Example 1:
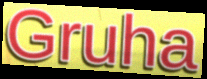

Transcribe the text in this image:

Gruha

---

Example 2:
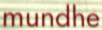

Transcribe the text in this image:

mundhe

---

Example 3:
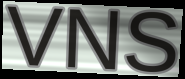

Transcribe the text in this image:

VNS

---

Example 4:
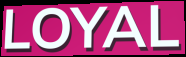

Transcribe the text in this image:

LOYAL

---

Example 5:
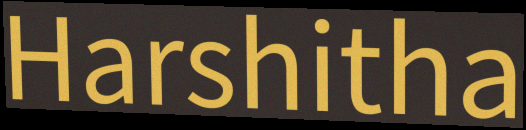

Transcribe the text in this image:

Harshitha